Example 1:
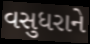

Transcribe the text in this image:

વસુધરાને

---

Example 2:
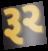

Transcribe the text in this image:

રૂર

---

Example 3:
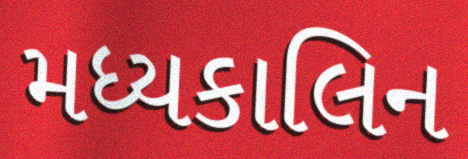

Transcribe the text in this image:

મધ્યકાલિન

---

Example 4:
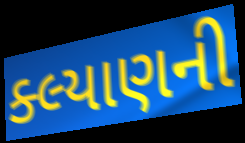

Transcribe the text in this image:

ક્લ્યાણની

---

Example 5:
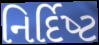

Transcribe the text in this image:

નિર્દિષ્‍ટ